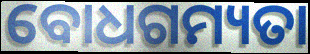
ବୋଧଗମ୍ୟତା